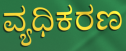
ವ್ಯಧಿಕರಣ